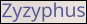
Zyzyphus